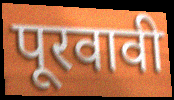
पूरवावी